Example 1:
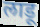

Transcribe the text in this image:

लाडू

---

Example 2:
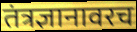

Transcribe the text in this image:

तंत्रज्ञानावरच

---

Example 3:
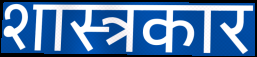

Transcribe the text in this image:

शास्त्रकार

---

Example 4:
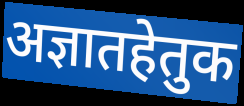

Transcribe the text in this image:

अज्ञातहेतुक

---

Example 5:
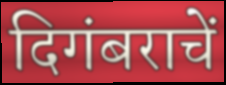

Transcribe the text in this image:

दिगंबराचें